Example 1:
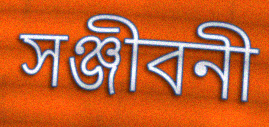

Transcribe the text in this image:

সঞ্জীবনী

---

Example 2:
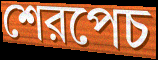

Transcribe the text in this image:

শেরপেচ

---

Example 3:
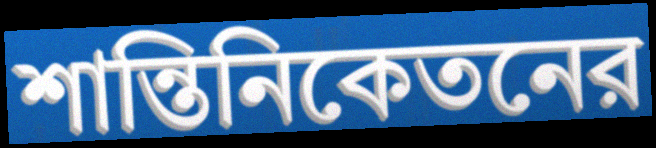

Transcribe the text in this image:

শান্তিনিকেতনের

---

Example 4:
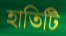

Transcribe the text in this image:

হাতিটি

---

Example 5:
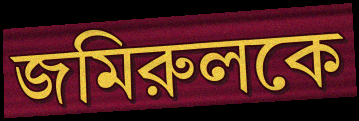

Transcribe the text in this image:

জমিরুলকে